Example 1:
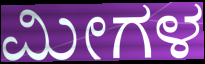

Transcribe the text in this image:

ಮೀಗಳ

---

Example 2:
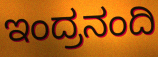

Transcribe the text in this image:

ಇಂದ್ರನಂದಿ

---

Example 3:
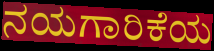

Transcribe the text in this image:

ನಯಗಾರಿಕೆಯ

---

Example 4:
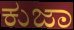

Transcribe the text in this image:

ಕುಜಾ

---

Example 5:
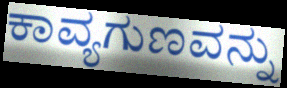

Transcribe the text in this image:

ಕಾವ್ಯಗುಣವನ್ನು